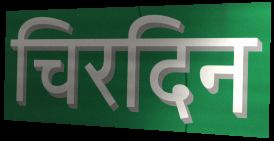
चिरदिन